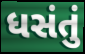
ધસંતું